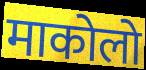
माकोलो